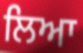
ਲਿਆ